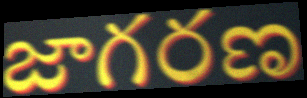
జాగరణ